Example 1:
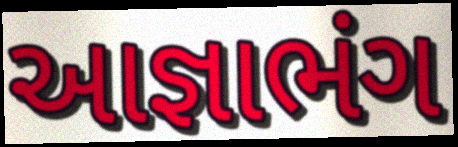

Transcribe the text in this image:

આજ્ઞાભંગ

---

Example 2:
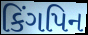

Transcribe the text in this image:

કિંગપિન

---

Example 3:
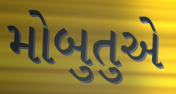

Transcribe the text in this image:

મોબુતુએ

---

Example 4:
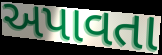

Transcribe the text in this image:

અપાવતા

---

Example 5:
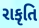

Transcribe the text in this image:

રાકૃતિ